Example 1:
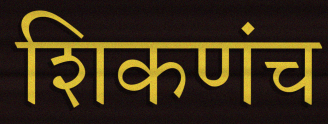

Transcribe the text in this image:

शिकणंच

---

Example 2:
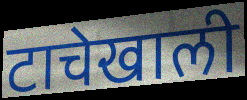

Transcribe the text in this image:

टाचेखाली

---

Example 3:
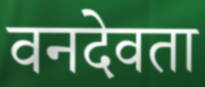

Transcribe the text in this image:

वनदेवता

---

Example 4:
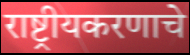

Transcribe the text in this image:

राष्ट्रीयकरणाचे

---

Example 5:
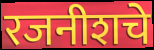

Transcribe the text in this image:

रजनीशचे